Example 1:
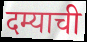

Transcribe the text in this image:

दम्याची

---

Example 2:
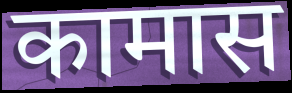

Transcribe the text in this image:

कामास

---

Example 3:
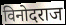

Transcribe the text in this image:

विनोदराज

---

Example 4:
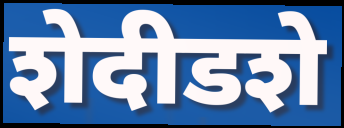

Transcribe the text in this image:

शेदीडशे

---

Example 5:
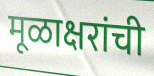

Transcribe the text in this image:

मूळाक्षरांची